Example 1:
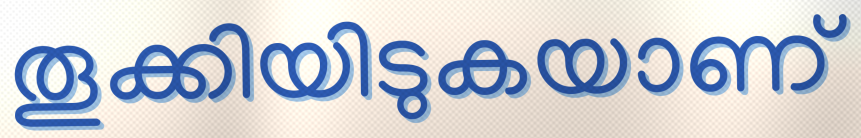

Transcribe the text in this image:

തൂക്കിയിടുകയാണ്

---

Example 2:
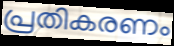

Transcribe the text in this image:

പ്രതികരണം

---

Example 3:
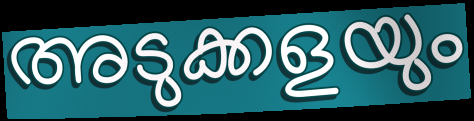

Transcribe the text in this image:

അടുക്കളയും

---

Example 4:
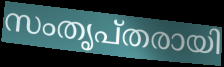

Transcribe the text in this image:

സംതൃപ്തരായി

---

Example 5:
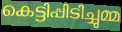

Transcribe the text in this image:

കെട്ടിപ്പിടിച്ചുമ്മ